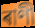
ৰাণী